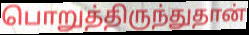
பொறுத்திருந்துதான்